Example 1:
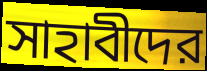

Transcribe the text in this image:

সাহাবীদের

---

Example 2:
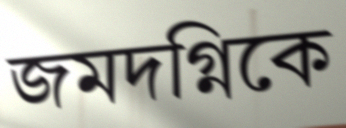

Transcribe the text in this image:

জমদগ্নিকে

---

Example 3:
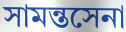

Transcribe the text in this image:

সামন্তসেনা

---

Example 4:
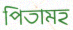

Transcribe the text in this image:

পিতামহ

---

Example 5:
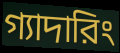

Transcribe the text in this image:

গ্যাদারিং